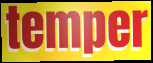
temper